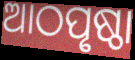
ଆଠପୃଷ୍ଠା